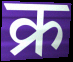
क्र